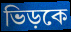
ভিড়কে